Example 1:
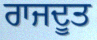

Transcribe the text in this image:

ਰਾਜਦੂਤ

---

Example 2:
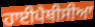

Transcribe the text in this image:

ਹਾਈਪੈਥੀਸੀਆ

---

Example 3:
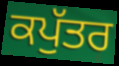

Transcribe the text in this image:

ਕਪੁੱਤਰ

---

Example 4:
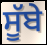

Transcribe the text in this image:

ਸੂੱਬੇ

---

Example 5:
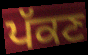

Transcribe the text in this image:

ਪੱਕਣ